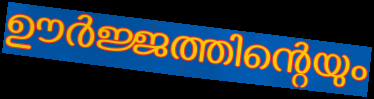
ഊർജ്ജത്തിന്റെയും